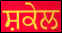
ਸ਼ਕੇਲ